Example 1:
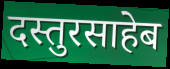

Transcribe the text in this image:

दस्तुरसाहेब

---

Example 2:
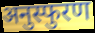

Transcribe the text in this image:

अनुस्फुरण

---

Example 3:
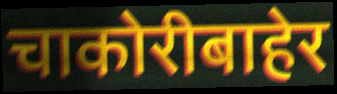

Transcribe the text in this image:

चाकोरीबाहेर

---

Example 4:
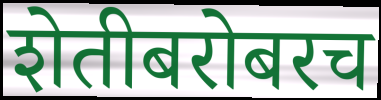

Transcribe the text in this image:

शेतीबरोबरच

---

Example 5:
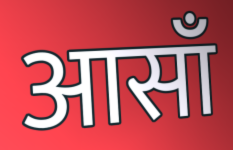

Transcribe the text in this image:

आसाँ